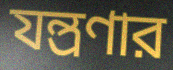
যন্ত্রণার